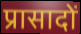
प्रासादों